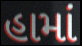
હામાં